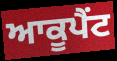
ਆਕੂਪੈਂਟ